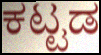
ಕಟ್ಟಡ